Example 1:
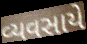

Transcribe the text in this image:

વ્યવસાયે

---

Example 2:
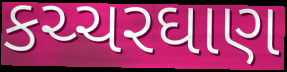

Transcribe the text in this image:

કચ્ચરઘાણ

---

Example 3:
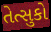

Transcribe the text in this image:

તેત્સુકો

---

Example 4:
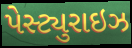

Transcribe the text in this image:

પેસ્ટ્યુરાઇઝ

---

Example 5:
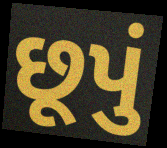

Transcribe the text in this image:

છૂપું